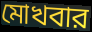
মোখবার